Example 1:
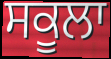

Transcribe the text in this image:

ਸਕੂਲਾ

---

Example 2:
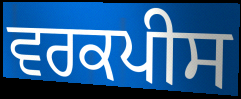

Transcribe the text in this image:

ਵਰਕਪੀਸ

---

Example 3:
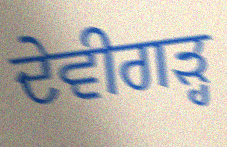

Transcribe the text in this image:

ਦੇਵੀਗੜ੍ਹ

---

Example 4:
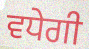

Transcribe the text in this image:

ਵਧੇਗੀ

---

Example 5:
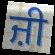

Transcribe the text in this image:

ਜ਼ੀ